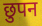
छुपन